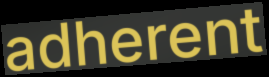
adherent